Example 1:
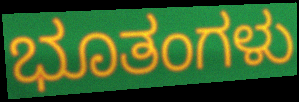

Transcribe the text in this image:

ಭೂತಂಗಳು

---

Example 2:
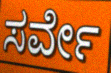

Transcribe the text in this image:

ಸರ್ವೇ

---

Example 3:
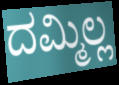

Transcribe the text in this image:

ದಮ್ಮಿಲ್ಲ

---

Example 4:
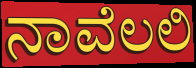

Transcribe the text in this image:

ನಾವೆಲಲಿ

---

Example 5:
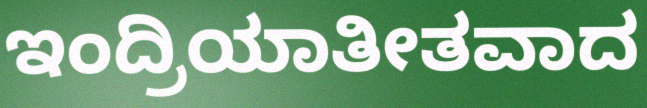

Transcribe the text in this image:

ಇಂದ್ರಿಯಾತೀತವಾದ